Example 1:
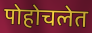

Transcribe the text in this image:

पोहोचलेत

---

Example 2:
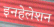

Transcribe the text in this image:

इनहेलेशन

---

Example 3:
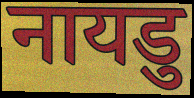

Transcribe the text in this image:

नायडु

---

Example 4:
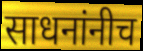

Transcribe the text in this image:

साधनांनीच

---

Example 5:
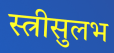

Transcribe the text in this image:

स्त्रीसुलभ